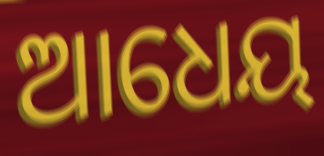
ଆଧେୟ